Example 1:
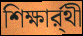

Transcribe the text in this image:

শিক্ষার্র্থী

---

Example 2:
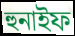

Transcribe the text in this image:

হুনাইফ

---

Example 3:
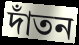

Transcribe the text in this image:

দাঁতন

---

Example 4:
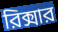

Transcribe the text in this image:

রিক্সার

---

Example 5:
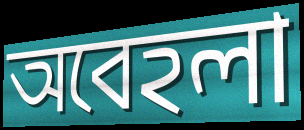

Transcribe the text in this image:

অবেহলা